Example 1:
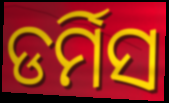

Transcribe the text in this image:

ଡର୍ମିସ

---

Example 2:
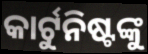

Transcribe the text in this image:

କାର୍ଟୁନିଷ୍ଟଙ୍କୁ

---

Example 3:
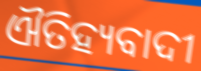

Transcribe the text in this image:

ଐତିହ୍ୟବାଦୀ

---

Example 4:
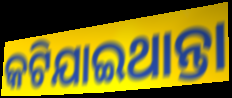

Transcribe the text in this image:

କଟିଯାଇଥାନ୍ତା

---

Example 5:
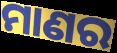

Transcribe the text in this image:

ମାଣର